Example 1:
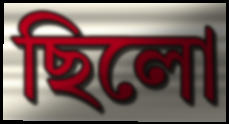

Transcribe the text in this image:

ছিলো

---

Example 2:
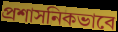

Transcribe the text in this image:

প্রশাসনিকভাবে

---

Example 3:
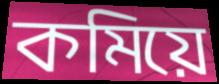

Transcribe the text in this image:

কমিয়ে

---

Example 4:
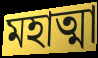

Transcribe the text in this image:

মহাত্মা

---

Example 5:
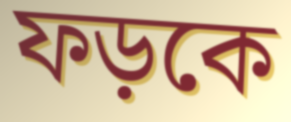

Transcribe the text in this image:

ফড়কে